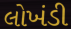
લોખંડી